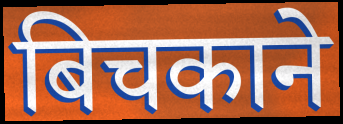
बिचकाने